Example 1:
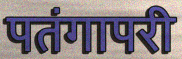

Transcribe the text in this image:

पतंगापरी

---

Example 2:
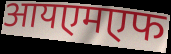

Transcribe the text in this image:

आयएमएफ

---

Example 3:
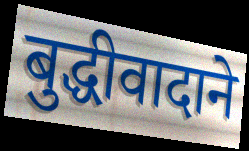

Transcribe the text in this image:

बुद्धीवादाने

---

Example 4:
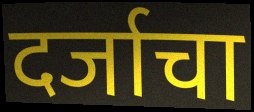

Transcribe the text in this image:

दर्जाचा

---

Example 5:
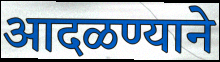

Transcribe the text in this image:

आदळण्याने